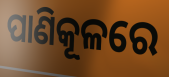
ପାଣିକୂଳରେ